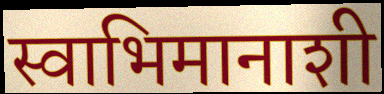
स्वाभिमानाशी